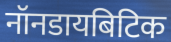
नॉनडायबिटिक